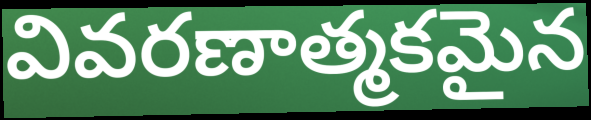
వివరణాత్మకమైన